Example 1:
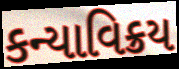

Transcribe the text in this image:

કન્યાવિક્રય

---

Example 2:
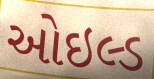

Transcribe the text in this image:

ઓઇલ્ડ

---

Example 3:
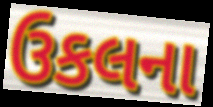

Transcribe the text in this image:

ઉકલના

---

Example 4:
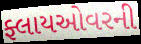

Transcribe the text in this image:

ફ્લાયઓવરની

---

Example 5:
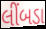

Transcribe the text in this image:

લીંબડા